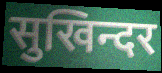
सुखिन्दर